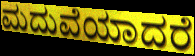
ಮದುವೆಯಾದರೆ